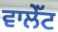
ਵਾਲੇੱਟ